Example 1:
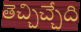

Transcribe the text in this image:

తెచ్చిచ్చేది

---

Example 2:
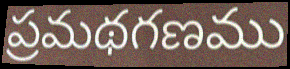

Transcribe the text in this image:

ప్రమథగణము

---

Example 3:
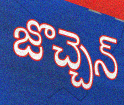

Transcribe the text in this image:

జొచ్చెన్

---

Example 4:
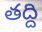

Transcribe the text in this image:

తద్ది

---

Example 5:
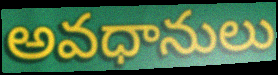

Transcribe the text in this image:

అవధానులు